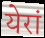
येरां